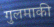
गुलमाकी